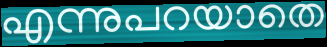
എന്നുപറയാതെ